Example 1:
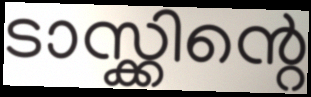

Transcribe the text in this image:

ടാസ്ക്കിന്റെ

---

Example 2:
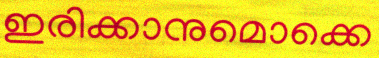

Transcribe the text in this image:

ഇരിക്കാനുമൊക്കെ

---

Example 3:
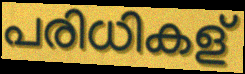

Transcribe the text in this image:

പരിധികള്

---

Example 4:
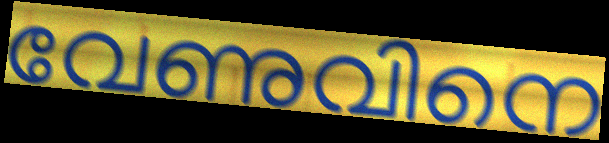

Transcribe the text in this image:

വേണുവിനെ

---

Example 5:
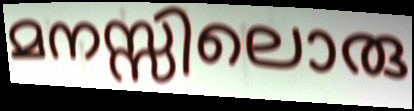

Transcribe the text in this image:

മനസ്സിലൊരു